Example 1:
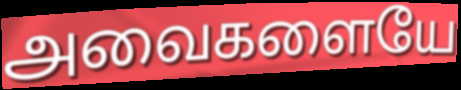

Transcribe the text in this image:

அவைகளையே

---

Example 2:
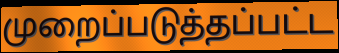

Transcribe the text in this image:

முறைப்படுத்தப்பட்ட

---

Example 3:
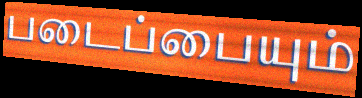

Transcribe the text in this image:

படைப்பையும்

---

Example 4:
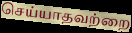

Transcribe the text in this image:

செய்யாதவற்றை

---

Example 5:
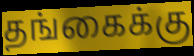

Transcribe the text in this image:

தங்கைக்கு